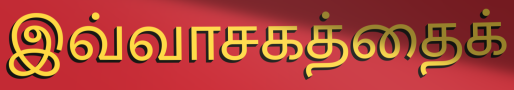
இவ்வாசகத்தைக்